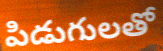
పిడుగులతో